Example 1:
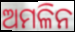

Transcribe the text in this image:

ଅମଳିନ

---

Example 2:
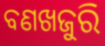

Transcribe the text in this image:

ବଣଖଜୁରି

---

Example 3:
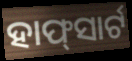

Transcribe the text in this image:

ହାଫ୍‍ସାର୍ଟ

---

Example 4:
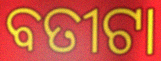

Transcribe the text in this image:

ବତୀଟା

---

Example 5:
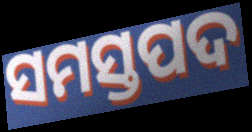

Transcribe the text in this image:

ସମସ୍ତପଦ